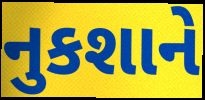
નુકશાને